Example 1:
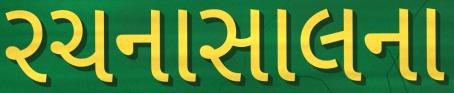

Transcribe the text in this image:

રચનાસાલના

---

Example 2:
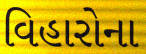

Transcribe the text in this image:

વિહારોના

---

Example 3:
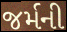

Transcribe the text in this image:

જર્મની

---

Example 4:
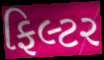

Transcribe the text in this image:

ફિલ્ટર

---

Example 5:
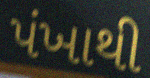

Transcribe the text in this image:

પંખાથી